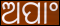
ଅପାଂ